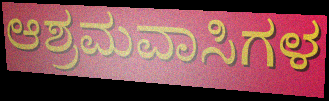
ಆಶ್ರಮವಾಸಿಗಳ